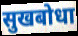
सुखबोधा